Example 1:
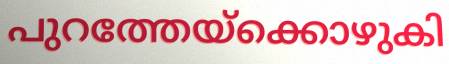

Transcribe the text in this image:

പുറത്തേയ്ക്കൊഴുകി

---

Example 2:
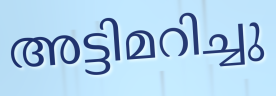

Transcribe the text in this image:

അട്ടിമറിച്ചു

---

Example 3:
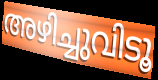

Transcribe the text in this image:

അഴിച്ചുവിടൂ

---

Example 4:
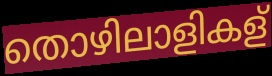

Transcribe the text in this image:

തൊഴിലാളികള്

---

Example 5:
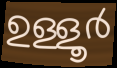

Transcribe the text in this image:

ഉള്ളൂർ